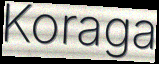
Koraga